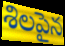
శిలపైన